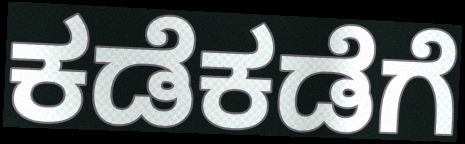
ಕಡೆಕಡೆಗೆ